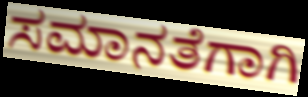
ಸಮಾನತೆಗಾಗಿ